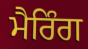
ਮੈਰਿੰਗ